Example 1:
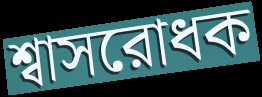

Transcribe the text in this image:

শ্বাসরোধক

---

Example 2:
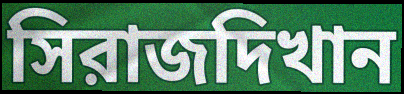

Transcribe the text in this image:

সিরাজদিখান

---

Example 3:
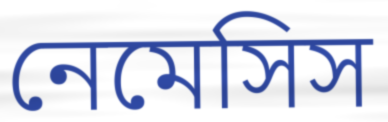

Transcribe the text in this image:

নেমেসিস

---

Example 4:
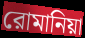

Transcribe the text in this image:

রোমানিয়া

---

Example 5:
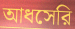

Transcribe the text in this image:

আধসেরি